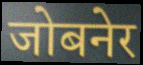
जोबनेर